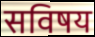
सविषय